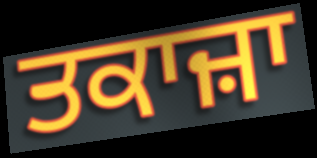
ਤਕਾਜ਼ਾ